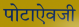
पोटाऐवजी